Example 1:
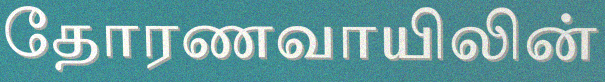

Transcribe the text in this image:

தோரணவாயிலின்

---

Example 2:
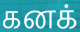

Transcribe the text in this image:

கனக்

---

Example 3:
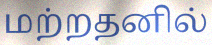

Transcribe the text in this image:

மற்றதனில்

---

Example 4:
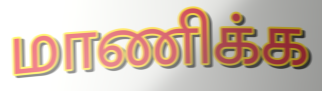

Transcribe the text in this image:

மாணிக்க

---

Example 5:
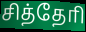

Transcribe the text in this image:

சித்தேரி